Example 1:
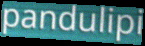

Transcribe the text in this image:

pandulipi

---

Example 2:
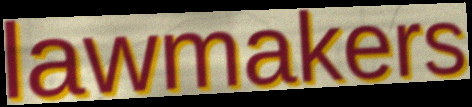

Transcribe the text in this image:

lawmakers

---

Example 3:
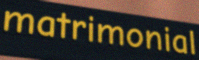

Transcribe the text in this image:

matrimonial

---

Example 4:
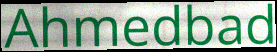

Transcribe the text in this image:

Ahmedbad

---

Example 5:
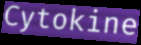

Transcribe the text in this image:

Cytokine